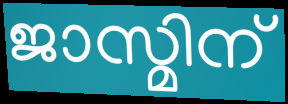
ജാസ്മിന്